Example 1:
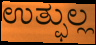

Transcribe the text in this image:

ಉತ್ಫುಲ್ಲ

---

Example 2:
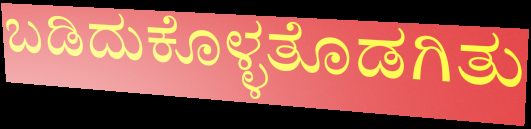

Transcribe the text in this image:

ಬಡಿದುಕೊಳ್ಳತೊಡಗಿತು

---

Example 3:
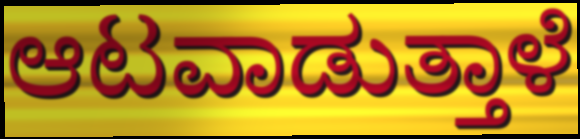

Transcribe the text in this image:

ಆಟವಾಡುತ್ತಾಳೆ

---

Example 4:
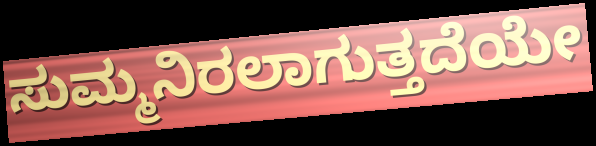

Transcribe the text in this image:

ಸುಮ್ಮನಿರಲಾಗುತ್ತದೆಯೇ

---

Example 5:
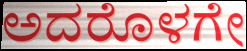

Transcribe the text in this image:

ಅದರೊಳಗೇ